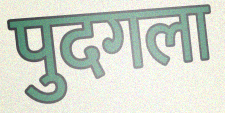
पुदगला